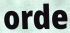
orde